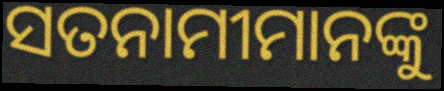
ସତନାମୀମାନଙ୍କୁ